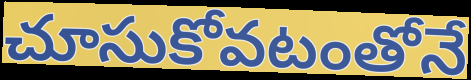
చూసుకోవటంతోనే